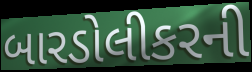
બારડોલીકરની